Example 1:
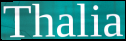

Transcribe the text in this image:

Thalia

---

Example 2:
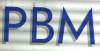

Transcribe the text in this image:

PBM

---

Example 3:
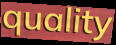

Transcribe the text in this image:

quality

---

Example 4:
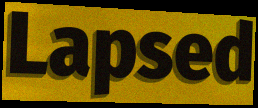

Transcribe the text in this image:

Lapsed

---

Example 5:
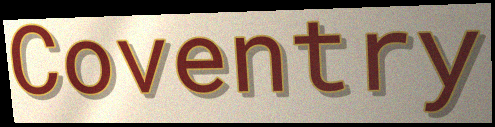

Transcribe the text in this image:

Coventry